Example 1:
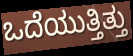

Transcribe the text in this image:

ಒದೆಯುತ್ತಿತ್ತು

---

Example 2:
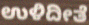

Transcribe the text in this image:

ಉಳಿದೀತೆ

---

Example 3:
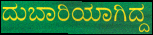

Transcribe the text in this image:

ದುಬಾರಿಯಾಗಿದ್ದ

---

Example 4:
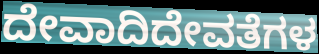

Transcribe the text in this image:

ದೇವಾದಿದೇವತೆಗಳ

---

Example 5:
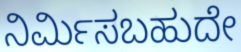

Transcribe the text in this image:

ನಿರ್ಮಿಸಬಹುದೇ